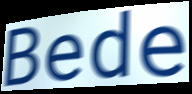
Bede